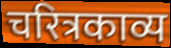
चरित्रकाव्य